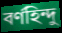
বৰ্ণহিন্দু